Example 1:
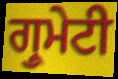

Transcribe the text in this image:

ਗ੍ਰੁਮੇਟੀ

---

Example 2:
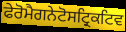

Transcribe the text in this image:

ਫੇਰੋਮੈਗਨੇਟੋਸਟ੍ਰਿਕਟਿਵ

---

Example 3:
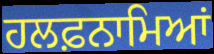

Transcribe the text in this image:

ਹਲਫ਼ਨਾਮਿਆਂ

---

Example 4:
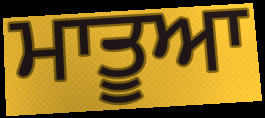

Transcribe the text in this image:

ਮਾਤੂਆ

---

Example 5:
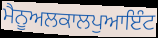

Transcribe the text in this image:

ਮੈਨੂਅਲਕਾਲਪੁਆਇੰਟ